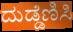
ದುಡ್ಡೆಣಿಸಿ